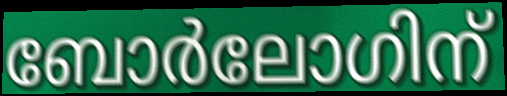
ബോർലോഗിന്